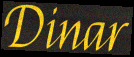
Dinar